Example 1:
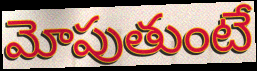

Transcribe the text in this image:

మోపుతుంటే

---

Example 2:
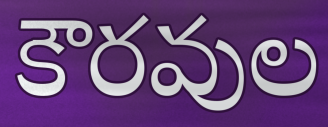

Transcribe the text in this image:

కౌరవుల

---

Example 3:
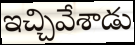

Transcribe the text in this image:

ఇచ్చివేశాడు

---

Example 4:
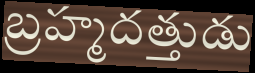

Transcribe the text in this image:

బ్రహ్మదత్తుడు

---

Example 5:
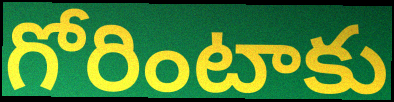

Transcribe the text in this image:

గోరింటాకు